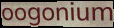
oogonium